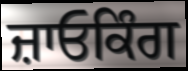
ਜ਼ਾਓਕਿੰਗ